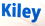
Kiley